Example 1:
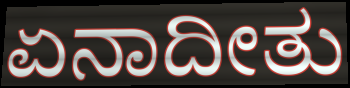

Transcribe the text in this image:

ಏನಾದೀತು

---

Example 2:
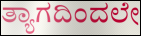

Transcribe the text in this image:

ತ್ಯಾಗದಿಂದಲೇ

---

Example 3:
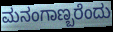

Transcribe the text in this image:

ಮನಂಗಾಣ್ಬರೆಂದು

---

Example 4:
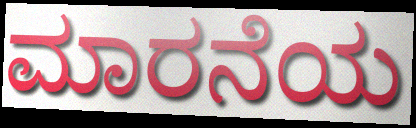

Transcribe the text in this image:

ಮಾರನೆಯ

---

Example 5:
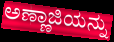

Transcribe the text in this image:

ಅಣ್ಣಾಜಿಯನ್ನು